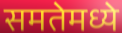
समतेमध्ये